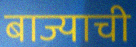
बाज्याची